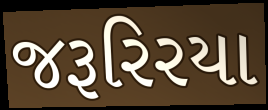
જરૂરિરયા